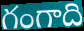
గంగాది